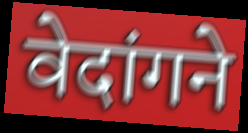
वेदांगने